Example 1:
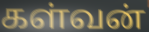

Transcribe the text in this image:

கள்வன்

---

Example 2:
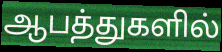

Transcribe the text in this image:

ஆபத்துகளில்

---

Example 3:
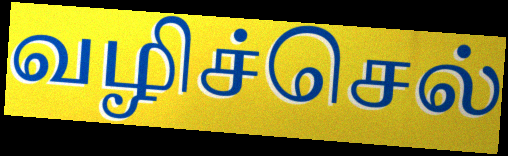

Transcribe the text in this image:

வழிச்செல்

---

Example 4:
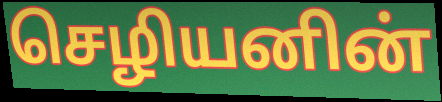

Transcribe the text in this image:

செழியனின்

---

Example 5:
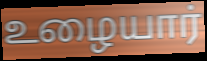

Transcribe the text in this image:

உழையார்